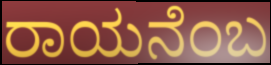
ರಾಯನೆಂಬ